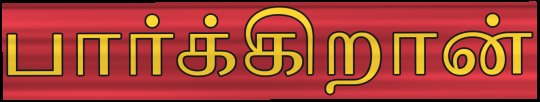
பார்க்கிறான்